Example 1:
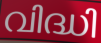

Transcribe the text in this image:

വിദ്ധി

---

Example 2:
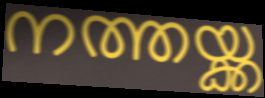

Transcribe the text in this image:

നത്തയ്ക്ക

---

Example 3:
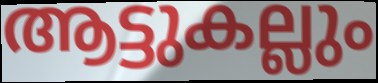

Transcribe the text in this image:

ആട്ടുകല്ലും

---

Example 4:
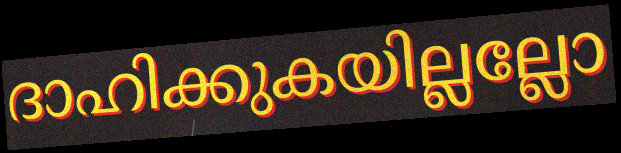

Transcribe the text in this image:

ദാഹിക്കുകയില്ലല്ലോ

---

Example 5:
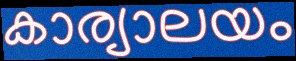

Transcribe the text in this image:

കാര്യാലയം